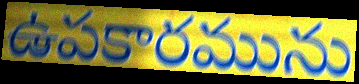
ఉపకారమును